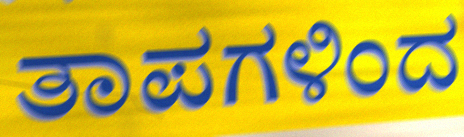
ತಾಪಗಳಿಂದ